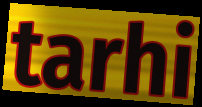
tarhi